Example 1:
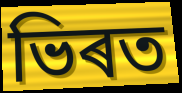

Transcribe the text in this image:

ভিৰত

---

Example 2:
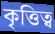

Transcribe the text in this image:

কৃত্তিত্ব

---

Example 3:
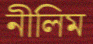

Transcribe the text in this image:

নীলিম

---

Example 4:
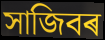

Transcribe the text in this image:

সাজিবৰ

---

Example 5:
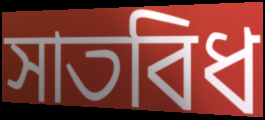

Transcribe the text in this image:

সাতবিধ